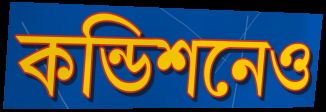
কন্ডিশনেও